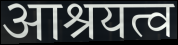
आश्रयत्व